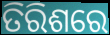
ତିରିଶରେ